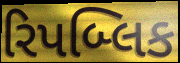
રિપબ્લિક